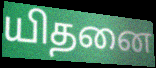
யிதனை